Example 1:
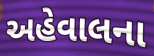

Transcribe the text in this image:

અહેવાલના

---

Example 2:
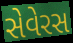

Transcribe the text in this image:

સેવેરસ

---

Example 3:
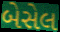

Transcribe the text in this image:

બેસેલ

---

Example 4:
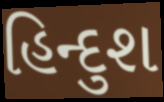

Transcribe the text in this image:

હિન્દુશ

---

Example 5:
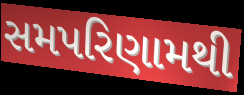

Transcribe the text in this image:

સમપરિણામથી